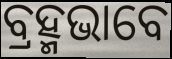
ବ୍ରହ୍ମଭାବେ